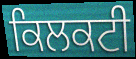
ਕਿਲਕਟੀ